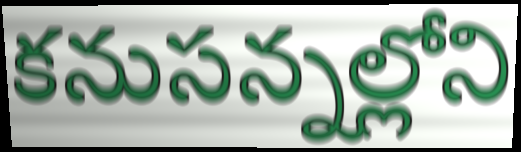
కనుసన్నల్లోని